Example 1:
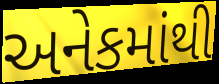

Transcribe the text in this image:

અનેકમાંથી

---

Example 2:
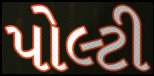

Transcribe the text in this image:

પોલ્ટી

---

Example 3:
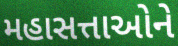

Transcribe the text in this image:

મહાસત્તાઓને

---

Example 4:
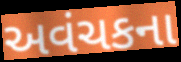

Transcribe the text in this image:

અવંચકના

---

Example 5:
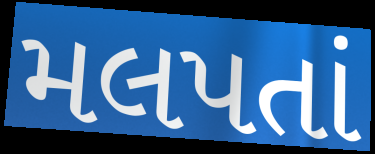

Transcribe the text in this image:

મલપતાં